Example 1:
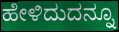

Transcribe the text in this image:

ಹೇಳಿದುದನ್ನೂ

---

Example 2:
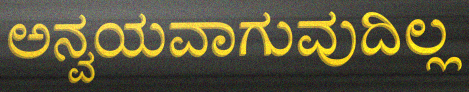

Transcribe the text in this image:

ಅನ್ವಯವಾಗುವುದಿಲ್ಲ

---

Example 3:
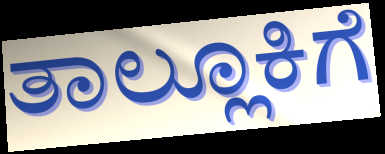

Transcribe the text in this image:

ತಾಲ್ಲೂಕಿಗೆ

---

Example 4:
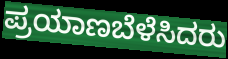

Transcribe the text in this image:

ಪ್ರಯಾಣಬೆಳೆಸಿದರು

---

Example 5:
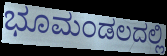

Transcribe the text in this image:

ಭೂಮಂಡಲದಲ್ಲಿ